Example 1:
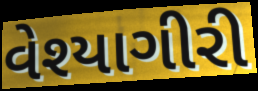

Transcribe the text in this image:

વેશ્યાગીરી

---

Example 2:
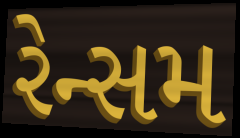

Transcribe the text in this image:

રેન્સમ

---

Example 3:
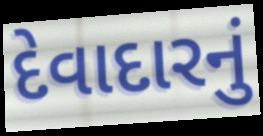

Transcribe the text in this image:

દેવાદારનું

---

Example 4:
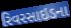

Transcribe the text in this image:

રિવરસાઇડના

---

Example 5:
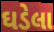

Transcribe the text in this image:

ઘડેલા